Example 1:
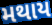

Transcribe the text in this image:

મથાય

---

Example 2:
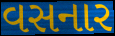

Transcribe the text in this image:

વસનાર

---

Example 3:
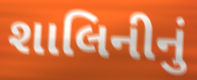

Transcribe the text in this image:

શાલિનીનું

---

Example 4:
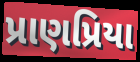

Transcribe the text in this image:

પ્રાણપ્રિયા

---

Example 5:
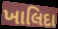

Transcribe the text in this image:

ખાલિદા